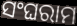
ସଂଘରାମ